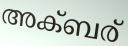
അക്ബര്